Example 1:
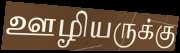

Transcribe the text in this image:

ஊழியருக்கு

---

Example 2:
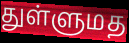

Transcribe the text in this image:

துள்ளுமத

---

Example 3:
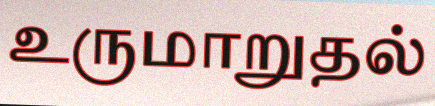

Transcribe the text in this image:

உருமாறுதல்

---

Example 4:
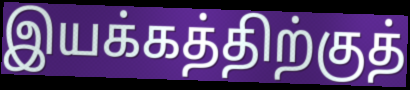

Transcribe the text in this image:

இயக்கத்திற்குத்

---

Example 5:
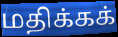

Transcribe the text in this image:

மதிக்கக்